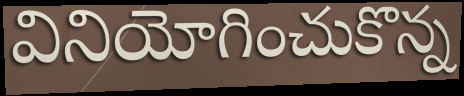
వినియోగించుకొన్న